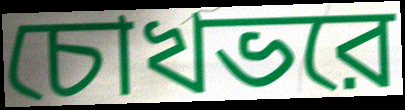
চোখভরে